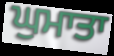
ਘੁਮਾਤਾ